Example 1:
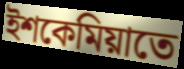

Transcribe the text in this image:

ইশকেমিয়াতে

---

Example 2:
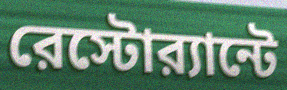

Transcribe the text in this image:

রেস্টোর‍্যান্টে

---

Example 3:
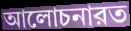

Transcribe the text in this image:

আলোচনারত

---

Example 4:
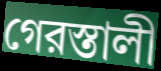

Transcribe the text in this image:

গেরস্তালী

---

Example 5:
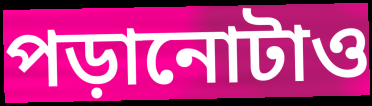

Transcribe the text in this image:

পড়ানোটাও